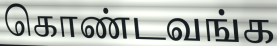
கொண்டவங்க